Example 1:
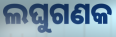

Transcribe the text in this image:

ଲଘୁଗଣକ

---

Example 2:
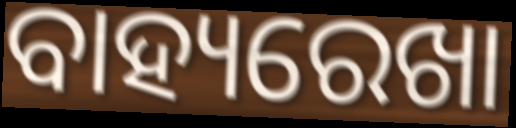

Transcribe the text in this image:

ବାହ୍ୟରେଖା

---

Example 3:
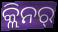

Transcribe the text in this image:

କ୍ଲିନର୍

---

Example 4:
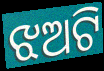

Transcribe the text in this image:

ଝଅଟି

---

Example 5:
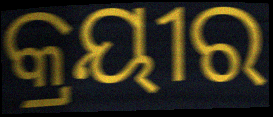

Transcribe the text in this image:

କ୍ରୟୀର